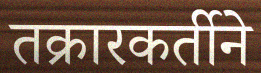
तक्रारकर्तीने